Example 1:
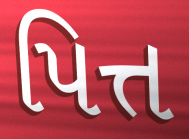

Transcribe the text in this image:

પિત્ત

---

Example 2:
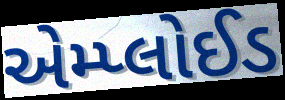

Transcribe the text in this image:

એમ્પ્લોઈડ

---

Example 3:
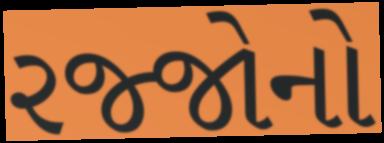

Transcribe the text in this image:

રજ્જોનો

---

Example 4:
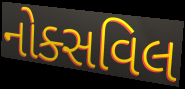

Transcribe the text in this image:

નોક્સવિલ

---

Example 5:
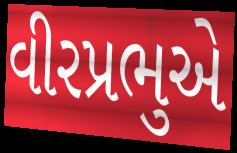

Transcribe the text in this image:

વીરપ્રભુએ